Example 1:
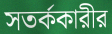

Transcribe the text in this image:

সতর্ককারীর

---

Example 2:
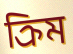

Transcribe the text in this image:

ক্রিম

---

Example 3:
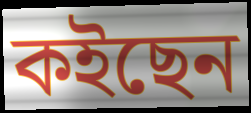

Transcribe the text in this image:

কইছেন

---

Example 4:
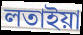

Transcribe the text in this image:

লতাইয়া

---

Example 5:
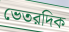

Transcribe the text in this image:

ভেতরদিক